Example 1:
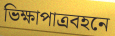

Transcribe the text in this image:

ভিক্ষাপাত্রবহনে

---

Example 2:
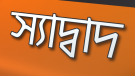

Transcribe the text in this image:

স্যাদ্বাদ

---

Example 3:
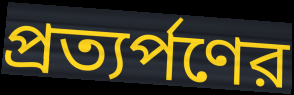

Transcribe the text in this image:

প্রত্যর্পণের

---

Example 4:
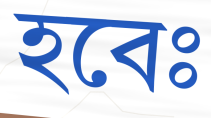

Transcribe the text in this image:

হবেঃ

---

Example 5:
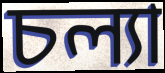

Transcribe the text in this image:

চল্যা